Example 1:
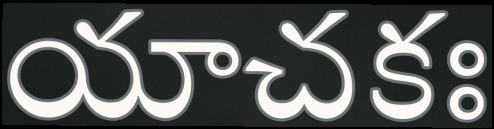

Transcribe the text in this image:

యాచకః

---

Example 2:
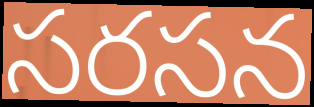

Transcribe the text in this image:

సరసన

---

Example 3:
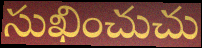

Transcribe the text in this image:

సుఖించుచు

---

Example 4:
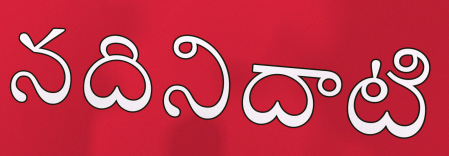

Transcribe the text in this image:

నదినిదాటి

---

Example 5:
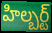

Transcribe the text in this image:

హిల్బర్ట్